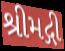
શ્રીમદ્ગી